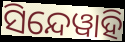
ସିନ୍ଦେୱାହି